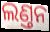
ଲଣ୍ତନ